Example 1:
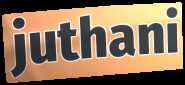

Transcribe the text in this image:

juthani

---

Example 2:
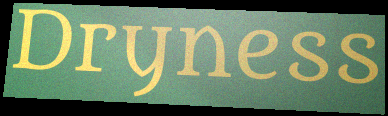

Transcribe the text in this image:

Dryness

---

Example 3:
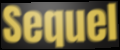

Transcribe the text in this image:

Sequel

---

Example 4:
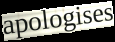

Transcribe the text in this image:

apologises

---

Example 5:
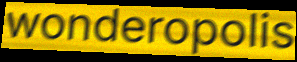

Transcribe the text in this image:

wonderopolis